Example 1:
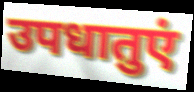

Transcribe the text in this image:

उपधातुएं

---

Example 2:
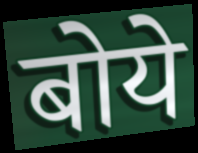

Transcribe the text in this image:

बोये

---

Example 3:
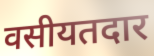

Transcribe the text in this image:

वसीयतदार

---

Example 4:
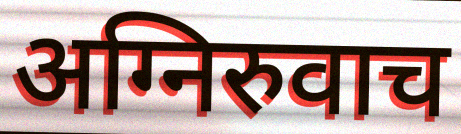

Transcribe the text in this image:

अग्निरुवाच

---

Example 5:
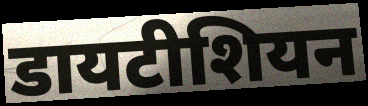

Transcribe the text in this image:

डायटीशियन